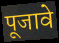
पूजावे